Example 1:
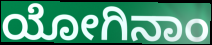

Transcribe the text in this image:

ಯೋಗಿನಾಂ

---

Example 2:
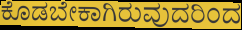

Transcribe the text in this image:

ಕೊಡಬೇಕಾಗಿರುವುದರಿಂದ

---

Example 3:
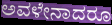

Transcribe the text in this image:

ಅವಳೇನಾದರೂ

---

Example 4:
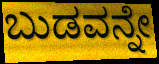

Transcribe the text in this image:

ಬುಡವನ್ನೇ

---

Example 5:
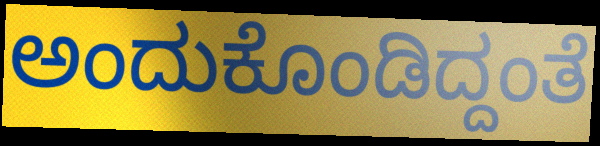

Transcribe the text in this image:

ಅಂದುಕೊಂಡಿದ್ದಂತೆ